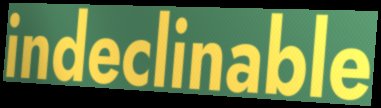
indeclinable